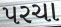
પરચા